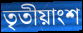
তৃতীয়াংশ